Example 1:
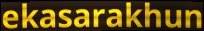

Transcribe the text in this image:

ekasarakhun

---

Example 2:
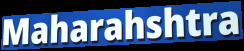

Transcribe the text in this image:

Maharahshtra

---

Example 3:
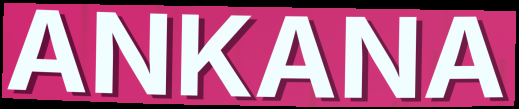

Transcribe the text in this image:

ANKANA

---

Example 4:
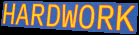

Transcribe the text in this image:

HARDWORK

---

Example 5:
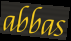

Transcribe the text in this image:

abbas